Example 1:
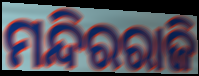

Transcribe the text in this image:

ମନ୍ଦିରରାଜି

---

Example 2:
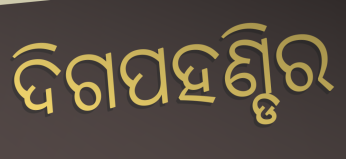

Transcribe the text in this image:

ଦିଗପହଣ୍ଡିର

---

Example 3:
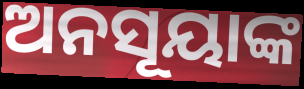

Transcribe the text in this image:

ଅନସୂୟାଙ୍କ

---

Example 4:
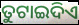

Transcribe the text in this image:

ତୁଟାଇଦିଏ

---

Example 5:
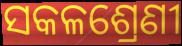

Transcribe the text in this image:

ସକଳଶ୍ରେଣୀ